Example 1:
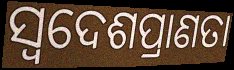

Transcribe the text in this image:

ସ୍ଵଦେଶପ୍ରାଣତା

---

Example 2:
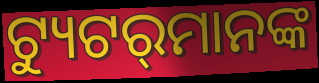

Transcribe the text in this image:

ଟ୍ୟୁଟର୍‍ମାନଙ୍କ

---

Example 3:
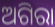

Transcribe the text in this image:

ଅଗିରା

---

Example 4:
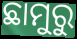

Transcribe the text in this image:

ଛାମୁରୁ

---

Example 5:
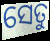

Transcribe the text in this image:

ସେତୁ